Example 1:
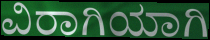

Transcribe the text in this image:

ವಿರಾಗಿಯಾಗಿ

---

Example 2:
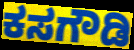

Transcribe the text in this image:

ಕಸಗೌಡಿ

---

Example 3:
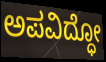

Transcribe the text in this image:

ಅಪವಿದ್ಧೋ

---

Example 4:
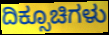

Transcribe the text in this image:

ದಿಕ್ಸೂಚಿಗಳು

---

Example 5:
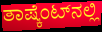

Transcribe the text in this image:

ತಾಷ್ಕೆಂಟ್‌ನಲ್ಲಿ